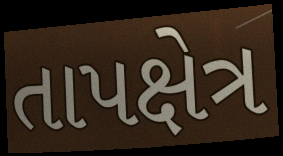
તાપક્ષેત્ર